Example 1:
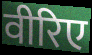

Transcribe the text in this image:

वीरिए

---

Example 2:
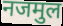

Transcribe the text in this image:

नजमुल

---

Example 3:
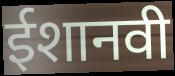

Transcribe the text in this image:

ईशानवी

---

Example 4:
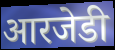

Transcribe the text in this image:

आरजेडी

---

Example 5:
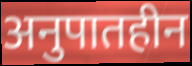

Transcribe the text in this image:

अनुपातहीन